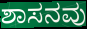
ಶಾಸನವು